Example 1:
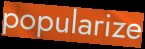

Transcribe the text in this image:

popularize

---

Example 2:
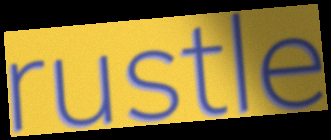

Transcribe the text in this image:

rustle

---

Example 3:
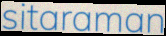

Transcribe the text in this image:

sitaraman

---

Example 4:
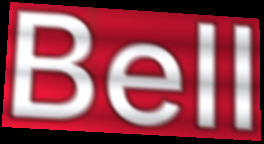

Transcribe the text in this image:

Bell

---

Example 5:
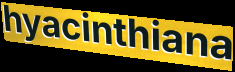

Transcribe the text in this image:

hyacinthiana